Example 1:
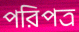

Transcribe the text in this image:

পরিপত্র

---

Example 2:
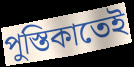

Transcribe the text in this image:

পুস্তিকাতেই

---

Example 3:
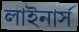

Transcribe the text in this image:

লাইনার্স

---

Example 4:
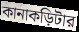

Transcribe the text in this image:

কানাকড়িটার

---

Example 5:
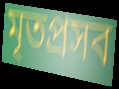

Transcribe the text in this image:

মৃতপ্রসব